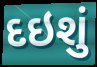
દઇશું